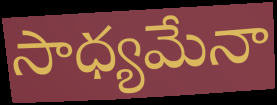
సాధ్యమేనా